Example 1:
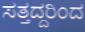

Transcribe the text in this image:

ಸತ್ತದ್ದರಿಂದ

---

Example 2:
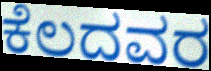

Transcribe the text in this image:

ಕೆಲದವರ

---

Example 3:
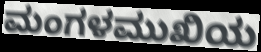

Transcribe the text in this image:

ಮಂಗಳಮುಖಿಯ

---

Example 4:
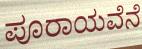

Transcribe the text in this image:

ಪೂರಾಯವೆನೆ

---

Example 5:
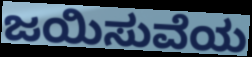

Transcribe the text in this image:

ಜಯಿಸುವೆಯ